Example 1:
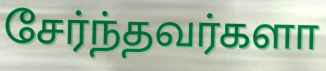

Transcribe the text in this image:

சேர்ந்தவர்களா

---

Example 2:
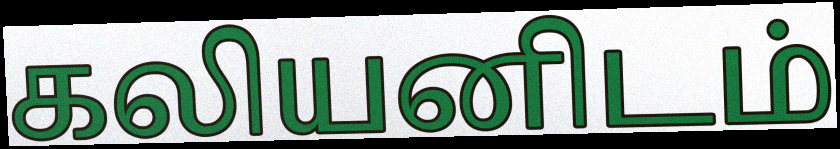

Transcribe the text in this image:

கலியனிடம்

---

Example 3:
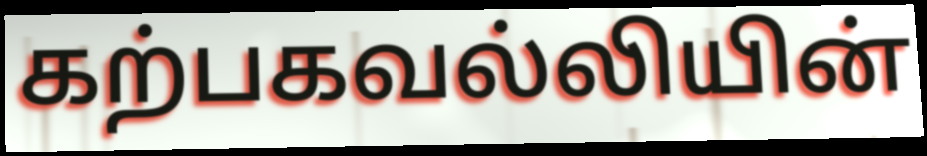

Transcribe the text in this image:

கற்பகவல்லியின்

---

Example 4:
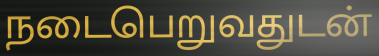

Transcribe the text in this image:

நடைபெறுவதுடன்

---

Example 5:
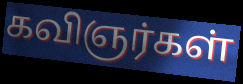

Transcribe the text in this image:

கவிஞர்கள்